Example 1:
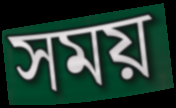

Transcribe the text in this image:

সময়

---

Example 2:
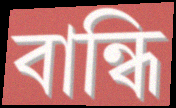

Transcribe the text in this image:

বান্ধি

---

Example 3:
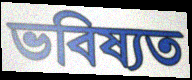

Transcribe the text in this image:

ভবিষ্যত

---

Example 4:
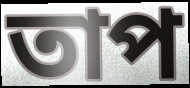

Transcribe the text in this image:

তাপ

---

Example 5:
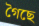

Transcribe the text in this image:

গৈছে